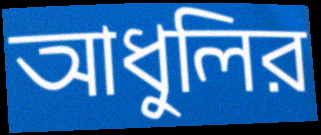
আধুলির